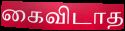
கைவிடாத